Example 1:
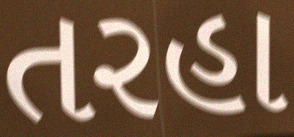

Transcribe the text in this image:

તરહા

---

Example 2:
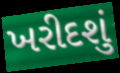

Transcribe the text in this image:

ખરીદશું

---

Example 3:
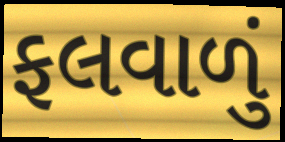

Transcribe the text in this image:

ફલવાળું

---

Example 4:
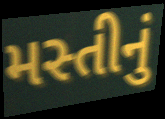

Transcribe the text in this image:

મસ્તીનું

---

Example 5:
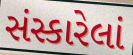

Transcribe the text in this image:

સંસ્કારેલાં